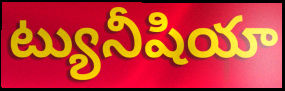
ట్యునీషియా